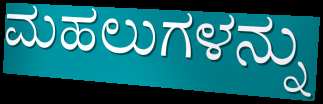
ಮಹಲುಗಳನ್ನು